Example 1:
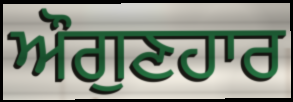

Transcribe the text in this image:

ਔਗੁਣਹਾਰ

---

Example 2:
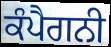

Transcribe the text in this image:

ਕੰਪੈਗਨੀ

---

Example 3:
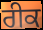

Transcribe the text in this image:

ਰੀਕ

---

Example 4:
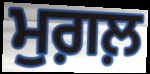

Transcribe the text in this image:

ਮੁਗ਼ਲ਼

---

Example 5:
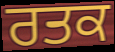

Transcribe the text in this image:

ਰਤਕ